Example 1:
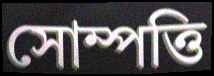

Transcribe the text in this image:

সোম্পত্তি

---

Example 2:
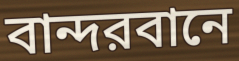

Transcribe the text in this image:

বান্দরবানে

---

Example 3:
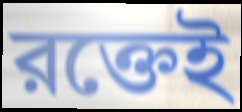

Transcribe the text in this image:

রক্তেই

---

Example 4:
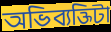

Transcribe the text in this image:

অভিব্যক্তিটা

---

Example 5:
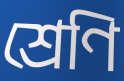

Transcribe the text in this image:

শ্রেণি